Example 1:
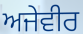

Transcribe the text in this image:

ਅਜੇਵੀਰ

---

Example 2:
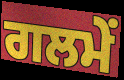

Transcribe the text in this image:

ਗਲਮੇਂ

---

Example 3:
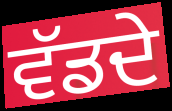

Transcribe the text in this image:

ਵੱਡਦੇ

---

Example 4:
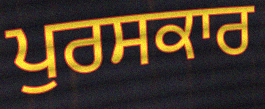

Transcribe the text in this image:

ਪੁਰਸਕਾਰ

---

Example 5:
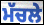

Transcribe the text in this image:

ਮੱਚਲੇ